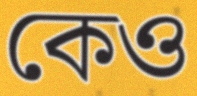
কেও